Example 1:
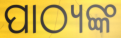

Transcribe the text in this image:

ପାଠ୍ୟଙ୍କ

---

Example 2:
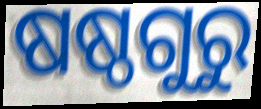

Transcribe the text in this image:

ଷଷ୍ଠଗୁରୁ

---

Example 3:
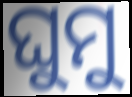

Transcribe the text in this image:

ଘୁମୁ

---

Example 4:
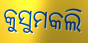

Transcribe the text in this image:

କୁସୁମକଲି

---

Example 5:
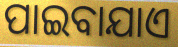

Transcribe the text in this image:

ପାଇବାଯାଏ